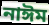
নাঈম